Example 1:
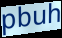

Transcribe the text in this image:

pbuh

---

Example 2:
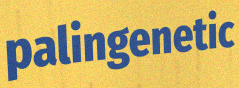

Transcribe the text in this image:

palingenetic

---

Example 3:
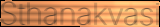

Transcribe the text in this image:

Sthanakvasi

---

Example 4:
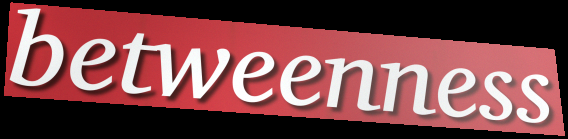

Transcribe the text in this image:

betweenness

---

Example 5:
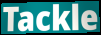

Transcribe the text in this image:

Tackle